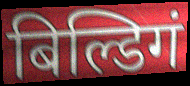
बिल्डिगं